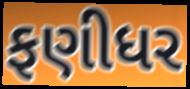
ફણીધર